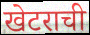
खेटराची